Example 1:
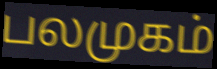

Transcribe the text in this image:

பலமுகம்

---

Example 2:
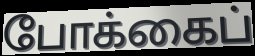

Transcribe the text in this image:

போக்கைப்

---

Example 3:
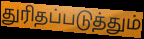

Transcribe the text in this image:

துரிதப்படுத்தும்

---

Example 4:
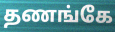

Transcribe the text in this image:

தணங்கே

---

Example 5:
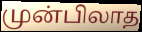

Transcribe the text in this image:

முன்பிலாத